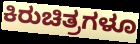
ಕಿರುಚಿತ್ರಗಳೂ